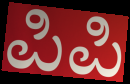
ಪಿಪಿ